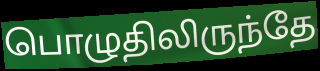
பொழுதிலிருந்தே